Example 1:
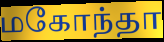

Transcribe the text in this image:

மகோந்தா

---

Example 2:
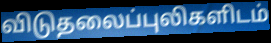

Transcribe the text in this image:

விடுதலைப்புலிகளிடம்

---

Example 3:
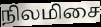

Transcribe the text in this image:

நிலமிசை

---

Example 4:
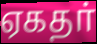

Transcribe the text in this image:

ஏகதர்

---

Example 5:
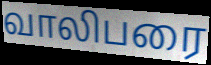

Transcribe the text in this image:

வாலிபரை